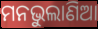
ମନଭୁଲାଣିଆ